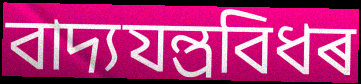
বাদ্যযন্ত্ৰবিধৰ